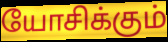
யோசிக்கும்